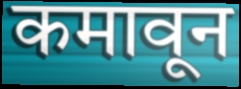
कमावून